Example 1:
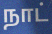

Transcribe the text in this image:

நாட்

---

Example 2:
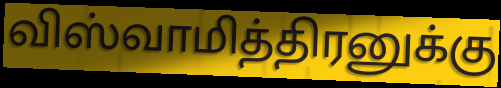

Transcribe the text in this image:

விஸ்வாமித்திரனுக்கு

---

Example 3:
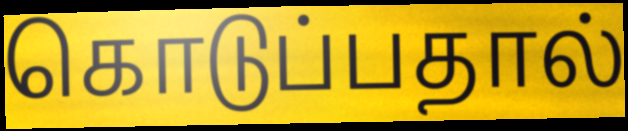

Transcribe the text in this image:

கொடுப்பதால்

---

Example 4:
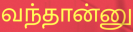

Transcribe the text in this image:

வந்தான்னு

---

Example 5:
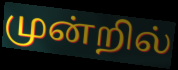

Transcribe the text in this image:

முன்றில்